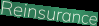
Reinsurance